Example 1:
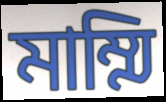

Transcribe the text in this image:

মাম্মি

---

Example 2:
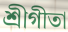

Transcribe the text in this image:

শ্রীগীতা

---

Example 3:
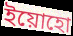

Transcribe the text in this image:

ইয়োহো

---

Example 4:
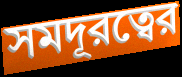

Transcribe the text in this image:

সমদূরত্বের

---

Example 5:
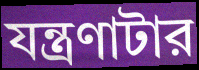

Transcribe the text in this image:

যন্ত্রণাটার